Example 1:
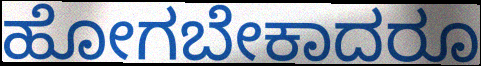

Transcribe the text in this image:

ಹೋಗಬೇಕಾದರೂ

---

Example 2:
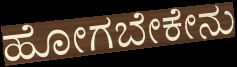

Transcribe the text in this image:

ಹೋಗಬೇಕೇನು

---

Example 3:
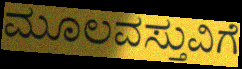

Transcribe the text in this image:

ಮೂಲವಸ್ತುವಿಗೆ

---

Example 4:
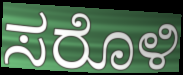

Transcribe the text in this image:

ಸರೊಳಿ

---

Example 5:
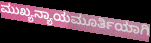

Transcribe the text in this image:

ಮುಖ್ಯನ್ಯಾಯಮೂರ್ತಿಯಾಗಿ